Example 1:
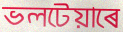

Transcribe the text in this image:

ভলটেয়াৰে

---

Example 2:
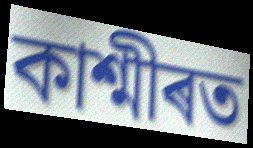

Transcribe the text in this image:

কাশ্মীৰত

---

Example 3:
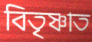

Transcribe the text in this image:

বিতৃষ্ণাত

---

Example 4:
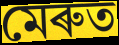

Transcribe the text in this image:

মেৰুত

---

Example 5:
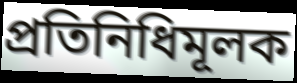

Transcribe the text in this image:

প্ৰতিনিধিমূলক